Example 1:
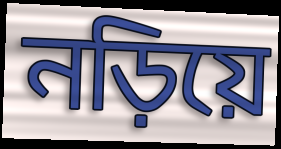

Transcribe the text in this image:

নড়িয়ে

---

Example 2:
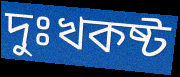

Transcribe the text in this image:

দুঃখকষ্ট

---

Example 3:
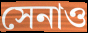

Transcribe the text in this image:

সেনাও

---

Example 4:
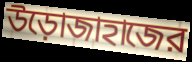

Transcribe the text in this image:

উড়োজাহাজের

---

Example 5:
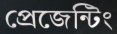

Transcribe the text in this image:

প্রেজেন্টিং